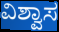
ವಿಶ್ವಾಸ